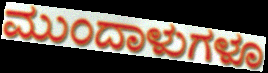
ಮುಂದಾಳುಗಳೂ